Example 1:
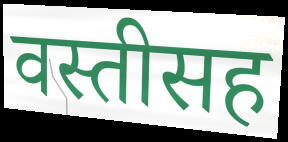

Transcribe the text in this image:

वस्तीसह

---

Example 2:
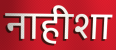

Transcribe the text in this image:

नाहीशा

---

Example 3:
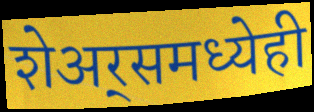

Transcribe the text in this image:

शेअर्समध्येही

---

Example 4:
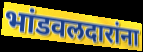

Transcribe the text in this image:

भांडवलदारांना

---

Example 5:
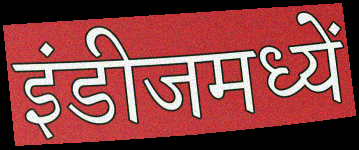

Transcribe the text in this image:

इंडीजमध्यें